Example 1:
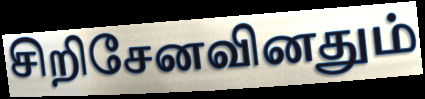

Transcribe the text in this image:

சிறிசேனவினதும்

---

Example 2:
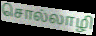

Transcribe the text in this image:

சொல்லாழி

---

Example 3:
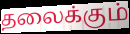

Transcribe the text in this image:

தலைக்கும்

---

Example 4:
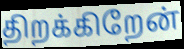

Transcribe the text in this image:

திறக்கிறேன்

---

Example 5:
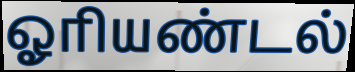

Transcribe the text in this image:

ஓரியண்டல்